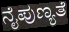
ನೈಪುಣ್ಯತೆ